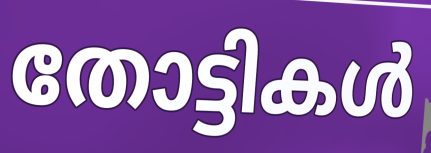
തോട്ടികൾ